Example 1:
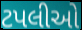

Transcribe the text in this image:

ટપલીઓ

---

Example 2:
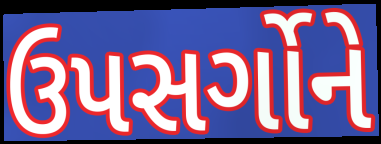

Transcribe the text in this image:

ઉપસર્ગોને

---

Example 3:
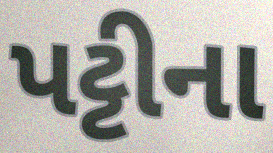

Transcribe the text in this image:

પટ્ટીના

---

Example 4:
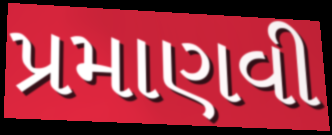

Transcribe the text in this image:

પ્રમાણવી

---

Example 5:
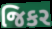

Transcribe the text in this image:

જિકર